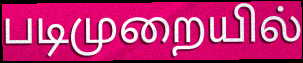
படிமுறையில்